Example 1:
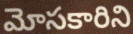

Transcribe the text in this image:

మోసకారిని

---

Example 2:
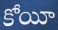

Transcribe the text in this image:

కోయీ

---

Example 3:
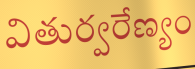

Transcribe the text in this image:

వితుర్వరేణ్యం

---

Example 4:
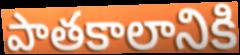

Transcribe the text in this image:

పాతకాలానికి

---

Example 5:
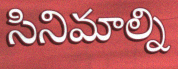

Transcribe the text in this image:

సినిమాల్ని